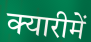
क्यारीमें